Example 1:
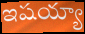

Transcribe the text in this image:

ఇషయ్యా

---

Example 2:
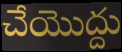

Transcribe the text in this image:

చేయొద్దు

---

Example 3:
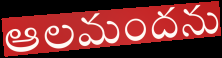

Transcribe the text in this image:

ఆలమందను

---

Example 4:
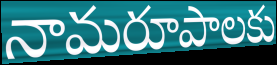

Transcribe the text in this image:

నామరూపాలకు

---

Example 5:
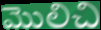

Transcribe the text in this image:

మొలిచి